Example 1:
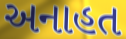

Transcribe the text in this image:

અનાહત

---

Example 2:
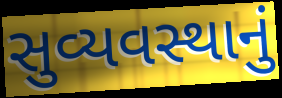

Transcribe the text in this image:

સુવ્યવસ્થાનું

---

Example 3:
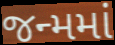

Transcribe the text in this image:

જન્મમાં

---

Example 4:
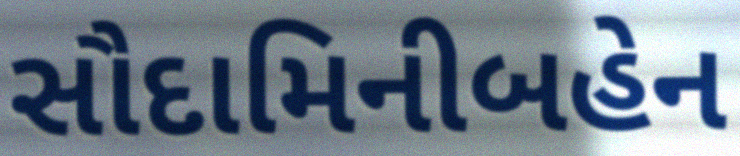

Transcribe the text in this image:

સૌદામિનીબહેન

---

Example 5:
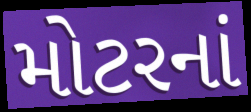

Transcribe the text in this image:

મોટરનાં